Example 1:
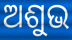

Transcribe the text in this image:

ଅଶୁଭ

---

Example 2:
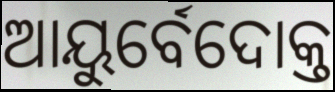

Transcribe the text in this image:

ଆୟୁର୍ବେଦୋକ୍ତ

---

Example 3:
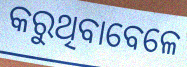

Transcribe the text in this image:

କରୁଥିବାବେଳେ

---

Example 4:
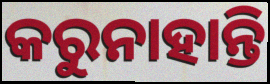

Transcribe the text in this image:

କରୁନାହାନ୍ତି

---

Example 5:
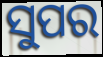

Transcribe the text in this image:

ସୁପର